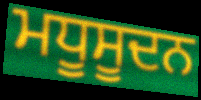
ਮਧੂਸੂਦਨ